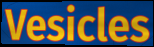
Vesicles